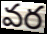
వర